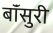
बॉंसुरी